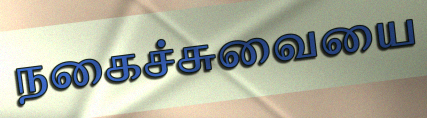
நகைச்சுவையை